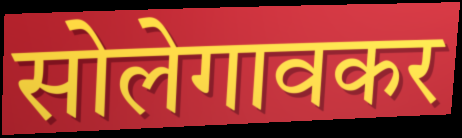
सोलेगावकर